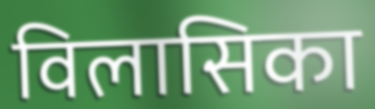
विलासिका